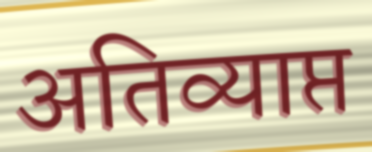
अतिव्याप्त